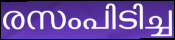
രസംപിടിച്ച